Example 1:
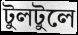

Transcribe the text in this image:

টুলটুলে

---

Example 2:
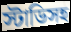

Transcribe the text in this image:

স্টাডিসহ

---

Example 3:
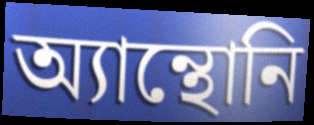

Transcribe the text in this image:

অ্যান্থোনি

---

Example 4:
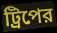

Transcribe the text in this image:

ট্রিপের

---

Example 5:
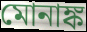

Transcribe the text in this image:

মোনাঙ্ক